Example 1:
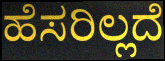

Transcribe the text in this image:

ಹೆಸರಿಲ್ಲದೆ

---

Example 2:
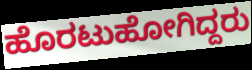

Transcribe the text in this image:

ಹೊರಟುಹೋಗಿದ್ದರು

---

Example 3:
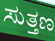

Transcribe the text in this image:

ಸುತ್ತಣ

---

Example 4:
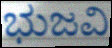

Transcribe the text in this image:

ಭುಜವಿ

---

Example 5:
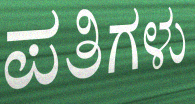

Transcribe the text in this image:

ಪತಿಗಳು